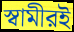
স্বামীরই